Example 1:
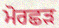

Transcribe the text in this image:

ਮੋਰਛੜ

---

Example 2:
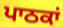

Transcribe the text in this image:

ਪਾਠਕਾਂ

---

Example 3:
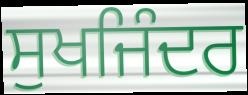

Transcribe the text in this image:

ਸੁਖਜਿੰਦਰ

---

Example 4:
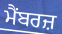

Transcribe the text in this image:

ਮੈਂਬਰਜ਼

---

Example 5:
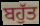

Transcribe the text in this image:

ਬਹੁੱਤ